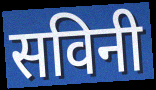
सविनी